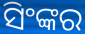
ସିଂଙ୍କର